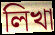
লিখা